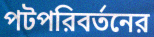
পটপরিবর্তনের